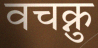
वचक्नु